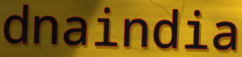
dnaindia